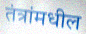
तंत्रांमधील